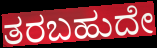
ತರಬಹುದೇ